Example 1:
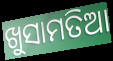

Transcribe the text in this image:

ଖୁସାମତିଆ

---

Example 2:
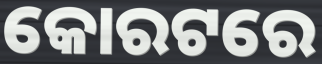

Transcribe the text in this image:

କୋରଟରେ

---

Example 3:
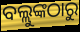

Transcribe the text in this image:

ବଲ୍ଲୁଙ୍କଠାରୁ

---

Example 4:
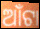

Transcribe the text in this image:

ଆଁଟା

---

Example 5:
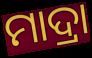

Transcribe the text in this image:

ମାଦ୍ରା